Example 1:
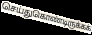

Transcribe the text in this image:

செய்துகொண்டிருக்கக்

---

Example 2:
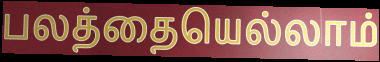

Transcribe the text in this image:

பலத்தையெல்லாம்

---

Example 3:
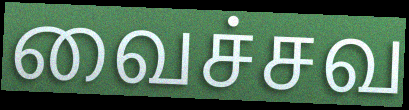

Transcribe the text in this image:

வைச்சவ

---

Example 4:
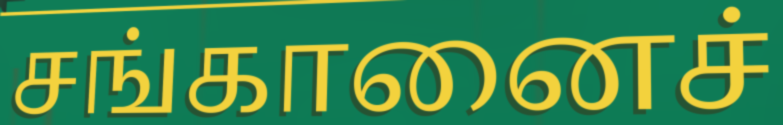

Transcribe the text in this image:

சங்கானைச்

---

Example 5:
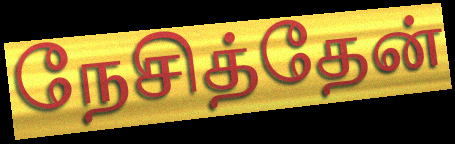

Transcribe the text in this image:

நேசித்தேன்